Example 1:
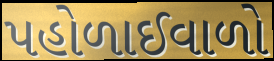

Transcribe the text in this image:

પહોળાઈવાળો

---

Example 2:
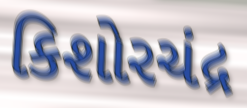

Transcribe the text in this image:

કિશોરચંદ્ર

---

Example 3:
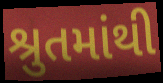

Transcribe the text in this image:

શ્રુતમાંથી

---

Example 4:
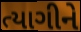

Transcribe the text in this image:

ત્યાગીને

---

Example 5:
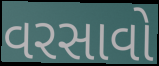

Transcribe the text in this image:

વરસાવો